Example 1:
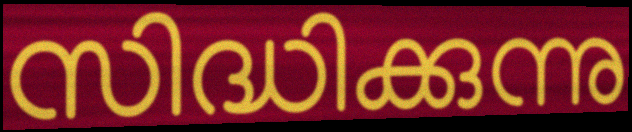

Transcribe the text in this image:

സിദ്ധിക്കുന്നു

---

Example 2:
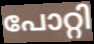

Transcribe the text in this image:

പോറ്റി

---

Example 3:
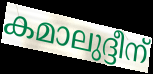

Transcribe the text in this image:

കമാലുദ്ദീന്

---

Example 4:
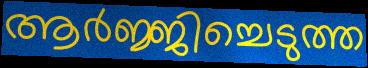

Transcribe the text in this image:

ആർജ്ജിച്ചെടുത്ത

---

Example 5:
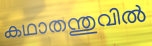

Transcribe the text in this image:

കഥാതന്തുവിൽ